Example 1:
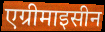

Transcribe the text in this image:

एग्रीमाइसीन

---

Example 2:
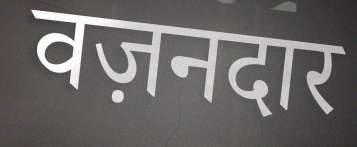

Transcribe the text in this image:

वज़नदार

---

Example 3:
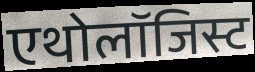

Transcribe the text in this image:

एथोलॉजिस्ट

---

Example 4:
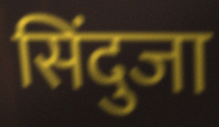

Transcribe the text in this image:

सिंदुजा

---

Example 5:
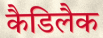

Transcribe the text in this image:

कैडिलैक